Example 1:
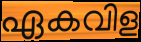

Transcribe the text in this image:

ഏകവിള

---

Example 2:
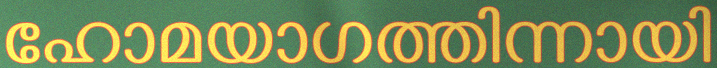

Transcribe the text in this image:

ഹോമയാഗത്തിന്നായി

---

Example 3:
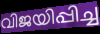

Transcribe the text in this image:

വിജയിപ്പിച്ച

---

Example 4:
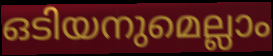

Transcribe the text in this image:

ഒടിയനുമെല്ലാം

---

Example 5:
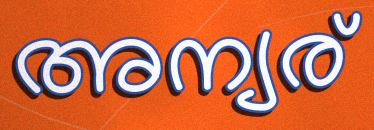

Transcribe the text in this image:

അന്യര്